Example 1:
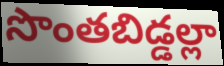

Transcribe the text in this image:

సొంతబిడ్డల్లా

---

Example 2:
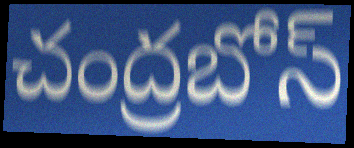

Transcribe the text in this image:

చంద్రబోస్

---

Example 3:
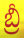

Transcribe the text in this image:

బ్రీ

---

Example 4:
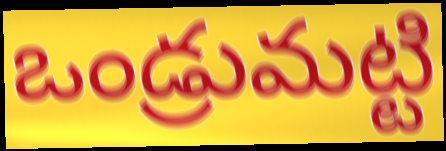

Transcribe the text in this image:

ఒండ్రుమట్టి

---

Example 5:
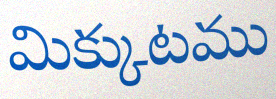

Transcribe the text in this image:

మిక్కుటము